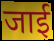
जाई